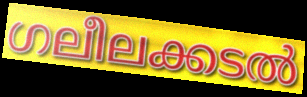
ഗലീലക്കടൽ